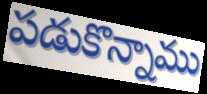
పడుకొన్నాము